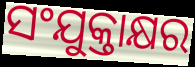
ସଂଯୁକ୍ତାକ୍ଷର